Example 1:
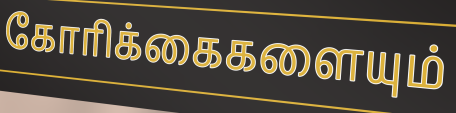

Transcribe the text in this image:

கோரிக்கைகளையும்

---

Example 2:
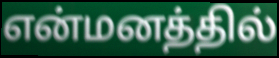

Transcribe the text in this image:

என்மனத்தில்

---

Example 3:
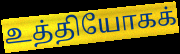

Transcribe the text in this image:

உத்தியோகக்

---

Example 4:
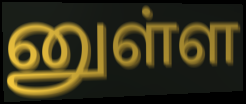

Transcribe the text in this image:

னுள்ள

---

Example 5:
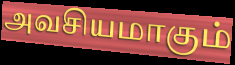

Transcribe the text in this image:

அவசியமாகும்